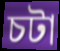
চটা